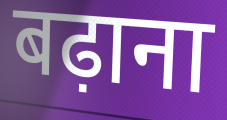
बढ़ाना